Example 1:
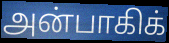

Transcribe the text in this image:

அன்பாகிக்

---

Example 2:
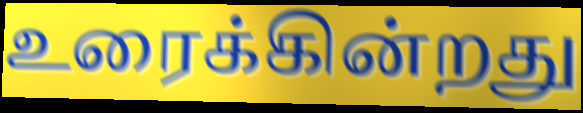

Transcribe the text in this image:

உரைக்கின்றது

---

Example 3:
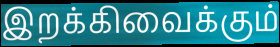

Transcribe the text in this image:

இறக்கிவைக்கும்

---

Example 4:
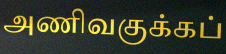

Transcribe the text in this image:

அணிவகுக்கப்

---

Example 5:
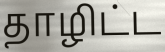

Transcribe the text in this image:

தாழிட்ட